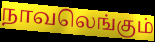
நாவலெங்கும்